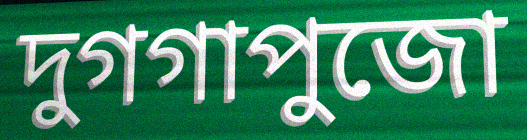
দুগগাপুজো